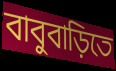
বাবুবাড়িতে